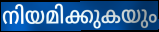
നിയമിക്കുകയും